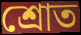
শ্ৰোত